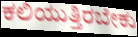
ಕಲಿಯುತ್ತಿರಬೇಕು